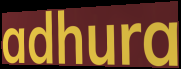
adhura